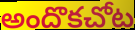
అందొకచోట